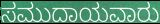
ಸಮುದಾಯವಾರು